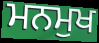
ਮਨਮੁਖ